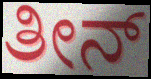
ತೀನ್